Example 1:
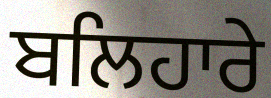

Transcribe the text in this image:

ਬਲਿਹਾਰੇ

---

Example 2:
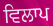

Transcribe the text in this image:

ਵਿਲਾਪ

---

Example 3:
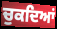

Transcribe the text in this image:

ਚੁਕਦਿਆਂ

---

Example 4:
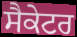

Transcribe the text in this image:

ਸੈਕੇਟਰ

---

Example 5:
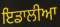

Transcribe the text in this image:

ਇਡਾਲੀਆ